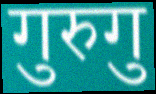
गुरुगु